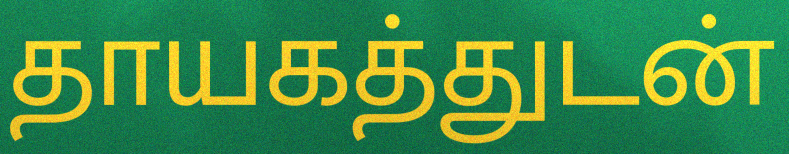
தாயகத்துடன்